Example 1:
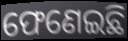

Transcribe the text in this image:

ଫେଣେଇଛି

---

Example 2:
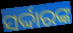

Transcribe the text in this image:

ସର୍ଦ୍ଦାରଙ୍କ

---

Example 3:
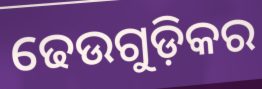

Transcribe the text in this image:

ଢେଉଗୁଡ଼ିକର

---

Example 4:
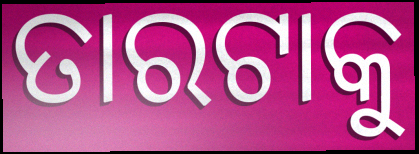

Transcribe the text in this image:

ତାରଟାକୁ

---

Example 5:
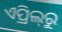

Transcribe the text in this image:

ଏପ୍ରିଲ୍‍ରୁ